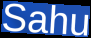
Sahu